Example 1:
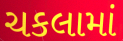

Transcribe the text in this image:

ચકલામાં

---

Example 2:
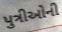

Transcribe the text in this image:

પુત્રીઓની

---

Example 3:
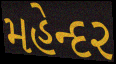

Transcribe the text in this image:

મહેન્દર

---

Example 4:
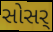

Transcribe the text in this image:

સોસર્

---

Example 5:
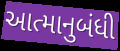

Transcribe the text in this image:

આત્માનુબંધી